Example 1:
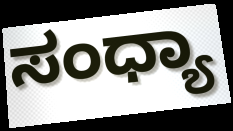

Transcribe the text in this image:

ಸಂಧ್ಯಾ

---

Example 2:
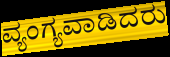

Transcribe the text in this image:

ವ್ಯಂಗ್ಯವಾಡಿದರು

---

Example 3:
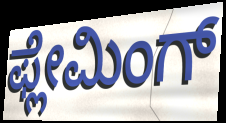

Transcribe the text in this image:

ಫ್ಲೇಮಿಂಗ್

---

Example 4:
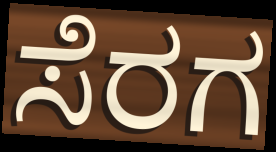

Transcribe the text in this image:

ಸೆರಗ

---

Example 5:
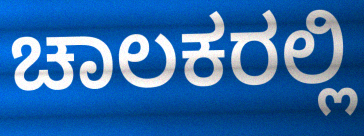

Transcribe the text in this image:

ಚಾಲಕರಲ್ಲಿ